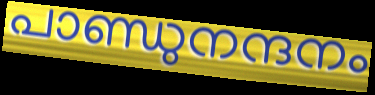
പാണ്ഡുനന്ദനം